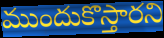
ముందుకొస్తారని